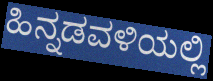
ಹಿನ್ನಡವಳಿಯಲ್ಲಿ